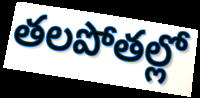
తలపోతల్లో